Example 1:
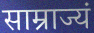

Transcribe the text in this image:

साम्राज्यं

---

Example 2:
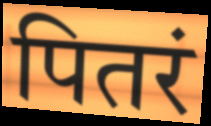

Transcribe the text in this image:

पितरं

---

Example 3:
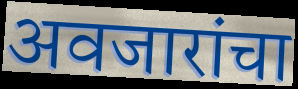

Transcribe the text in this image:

अवजारांचा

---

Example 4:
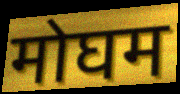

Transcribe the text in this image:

मोघम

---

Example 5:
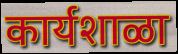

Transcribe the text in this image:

कार्यशाळा